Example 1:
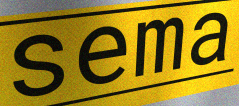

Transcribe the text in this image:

sema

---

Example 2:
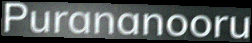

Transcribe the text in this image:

Purananooru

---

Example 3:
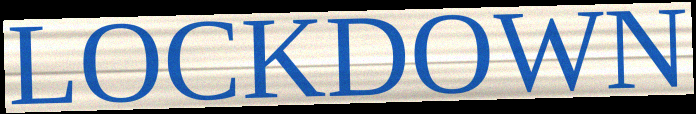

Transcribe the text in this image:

LOCKDOWN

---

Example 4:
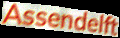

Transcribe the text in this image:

Assendelft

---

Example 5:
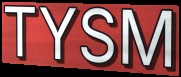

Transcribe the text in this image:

TYSM